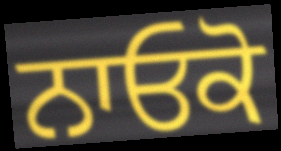
ਨਾਓਕੋ